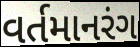
વર્તમાનરંગ